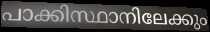
പാക്കിസ്ഥാനിലേക്കും